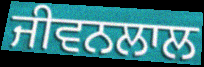
ਜੀਵਨਲਾਲ